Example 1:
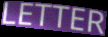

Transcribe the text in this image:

LETTER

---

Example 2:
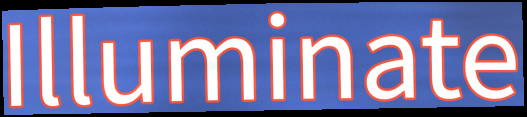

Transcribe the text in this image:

Illuminate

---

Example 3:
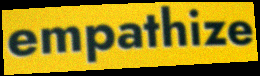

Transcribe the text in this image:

empathize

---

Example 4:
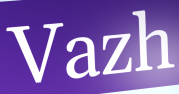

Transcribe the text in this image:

Vazh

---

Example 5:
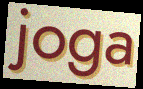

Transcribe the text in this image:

joga